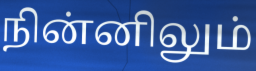
நின்னிலும்